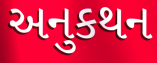
અનુકથન